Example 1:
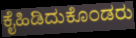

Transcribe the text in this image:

ಕೈಹಿಡಿದುಕೊಂಡರು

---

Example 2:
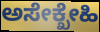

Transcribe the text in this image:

ಅಸೇಕ್ಖೇಹಿ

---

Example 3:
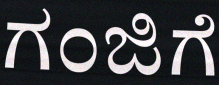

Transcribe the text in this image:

ಗಂಜಿಗೆ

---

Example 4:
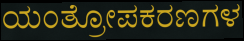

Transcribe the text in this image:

ಯಂತ್ರೋಪಕರಣಗಳ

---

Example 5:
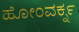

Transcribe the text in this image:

ಹೋಂವರ್ಕ್ನ